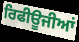
ਰਿਫੀਊਜੀਆਂ